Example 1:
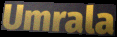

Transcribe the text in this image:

Umrala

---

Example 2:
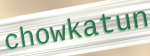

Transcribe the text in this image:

chowkatun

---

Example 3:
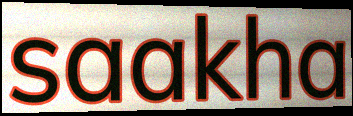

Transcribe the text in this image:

saakha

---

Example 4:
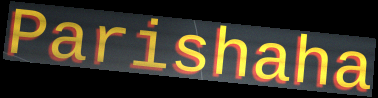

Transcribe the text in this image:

Parishaha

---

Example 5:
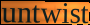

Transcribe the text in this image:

untwist